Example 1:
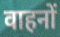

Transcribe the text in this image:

वाहनों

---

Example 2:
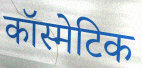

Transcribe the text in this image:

कॉस्मेटिक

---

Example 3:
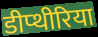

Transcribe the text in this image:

डीप्थीरिया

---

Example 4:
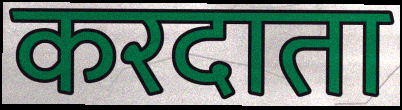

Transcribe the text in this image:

करदाता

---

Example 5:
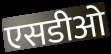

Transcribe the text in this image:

एसडीओ